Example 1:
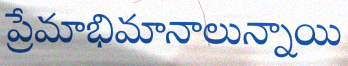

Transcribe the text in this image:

ప్రేమాభిమానాలున్నాయి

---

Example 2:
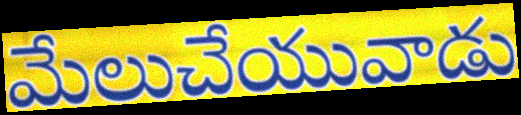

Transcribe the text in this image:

మేలుచేయువాడు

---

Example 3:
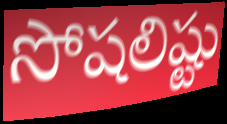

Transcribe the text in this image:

సోషలిష్టు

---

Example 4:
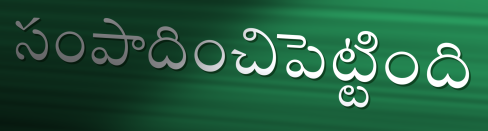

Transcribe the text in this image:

సంపాదించిపెట్టింది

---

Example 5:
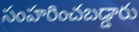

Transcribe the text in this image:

సంహరించబడ్డారు